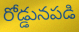
రోడ్డునపడి